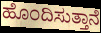
ಹೊಂದಿಸುತ್ತಾನೆ